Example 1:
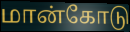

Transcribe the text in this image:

மான்கோடு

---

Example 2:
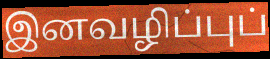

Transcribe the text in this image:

இனவழிப்புப்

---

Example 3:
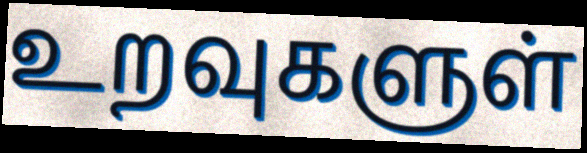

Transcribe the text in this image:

உறவுகளுள்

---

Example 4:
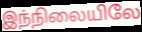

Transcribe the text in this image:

இந்நிலையிலே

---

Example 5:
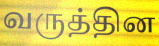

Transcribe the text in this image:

வருத்தின